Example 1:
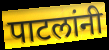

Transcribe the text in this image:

पाटलांनी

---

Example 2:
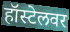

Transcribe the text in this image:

हॉस्टेलवर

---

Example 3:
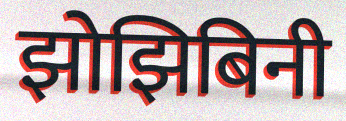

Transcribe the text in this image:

झोझिबिनी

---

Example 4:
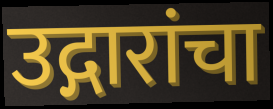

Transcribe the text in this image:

उद्गारांचा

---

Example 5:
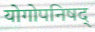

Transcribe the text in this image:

योगोपनिषद्